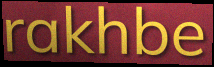
rakhbe